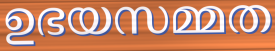
ഉഭയസമ്മത